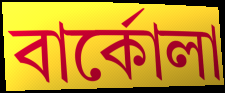
বার্কোলা